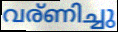
വര്ണിച്ചു